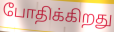
போதிக்கிறது